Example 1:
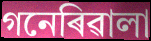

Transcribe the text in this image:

গনেৰিৱালা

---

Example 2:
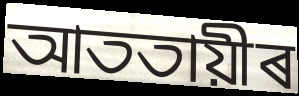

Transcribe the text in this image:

আততায়ীৰ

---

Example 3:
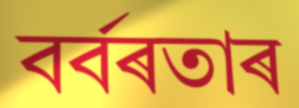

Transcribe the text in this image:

বৰ্বৰতাৰ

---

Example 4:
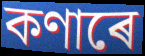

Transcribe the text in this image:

কণাৰে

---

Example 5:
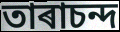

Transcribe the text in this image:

তাৰাচন্দ